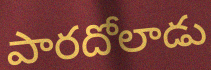
పారదోలాడు